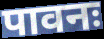
पावनः